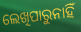
ଲେଖିପାରୁନାହିଁ